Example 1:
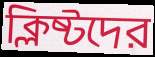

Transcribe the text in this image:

ক্লিষ্টদের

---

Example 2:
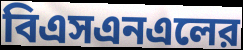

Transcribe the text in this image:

বিএসএনএলের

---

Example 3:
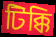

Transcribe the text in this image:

টিক্কি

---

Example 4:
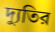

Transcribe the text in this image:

দ্যুতির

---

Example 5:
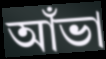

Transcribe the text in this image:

আঁভা